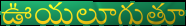
ఊయలూగుతూ